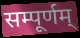
सम्पूर्णम्